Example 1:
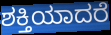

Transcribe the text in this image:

ಶಕ್ತಿಯಾದರೆ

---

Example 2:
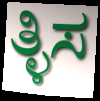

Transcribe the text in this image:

ತ್ಳಿಸ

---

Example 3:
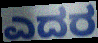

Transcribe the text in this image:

ಎದರ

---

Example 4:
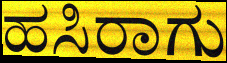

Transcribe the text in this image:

ಹಸಿರಾಗು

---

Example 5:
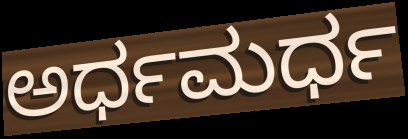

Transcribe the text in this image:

ಅರ್ಧಮರ್ಧ